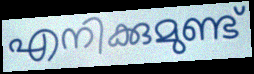
എനിക്കുമുണ്ട്